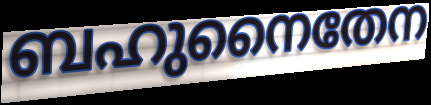
ബഹുനൈതേന